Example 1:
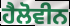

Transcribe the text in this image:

ਹੈਲੋਵੀਨ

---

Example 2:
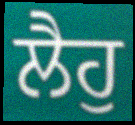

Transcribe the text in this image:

ਲੈਹੁ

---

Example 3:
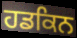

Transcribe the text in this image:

ਹਡਕਿਨ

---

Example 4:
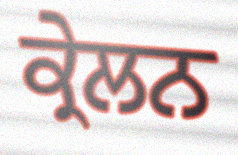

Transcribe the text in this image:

ਕ੍ਰੇਲਨ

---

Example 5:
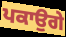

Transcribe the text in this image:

ਪਕਾਉਗੇ